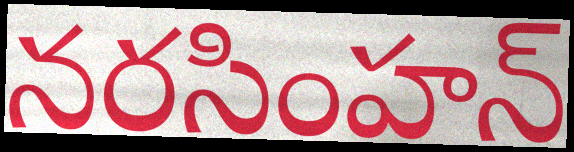
నరసింహన్